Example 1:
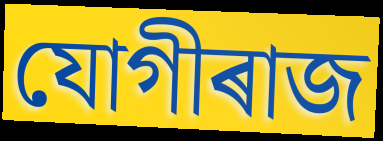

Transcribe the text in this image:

যোগীৰাজ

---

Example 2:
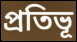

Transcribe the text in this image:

প্ৰতিভূ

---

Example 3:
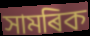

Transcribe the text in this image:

সামৰিক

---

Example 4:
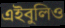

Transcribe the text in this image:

এইবুলিও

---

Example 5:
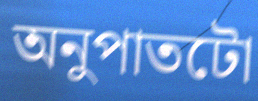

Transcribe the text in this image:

অনুপাতটো